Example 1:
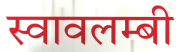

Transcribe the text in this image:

स्वावलम्बी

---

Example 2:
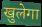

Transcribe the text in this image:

खुलेगा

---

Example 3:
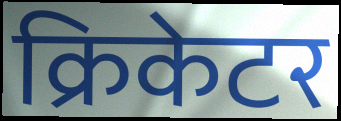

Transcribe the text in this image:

क्रिकेटर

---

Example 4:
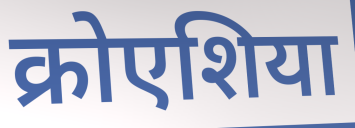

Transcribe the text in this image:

क्रोएशिया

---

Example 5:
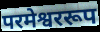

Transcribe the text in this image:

परमेश्वररूप